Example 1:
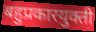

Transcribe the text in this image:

बहुप्रकारयुक्ती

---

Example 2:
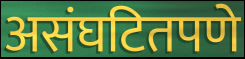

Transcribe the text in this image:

असंघटितपणे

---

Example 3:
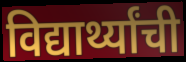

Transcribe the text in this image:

विद्यार्थ्यांची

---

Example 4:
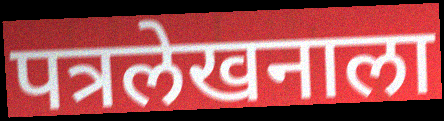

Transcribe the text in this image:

पत्रलेखनाला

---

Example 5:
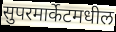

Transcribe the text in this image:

सुपरमार्केटमधील